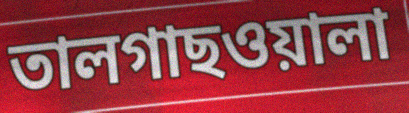
তালগাছওয়ালা